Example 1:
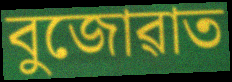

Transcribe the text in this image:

বুজোৱাত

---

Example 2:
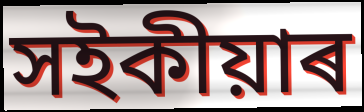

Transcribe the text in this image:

সইকীয়াৰ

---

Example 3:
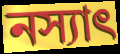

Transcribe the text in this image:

নস্যাৎ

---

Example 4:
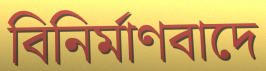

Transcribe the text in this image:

বিনিৰ্মাণবাদে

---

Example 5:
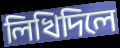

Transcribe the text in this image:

লিখিদিলে